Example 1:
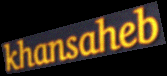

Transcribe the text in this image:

khansaheb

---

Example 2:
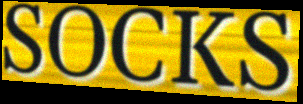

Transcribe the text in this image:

SOCKS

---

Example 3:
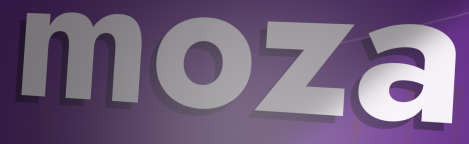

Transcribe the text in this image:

moza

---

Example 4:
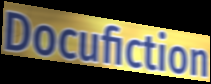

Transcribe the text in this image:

Docufiction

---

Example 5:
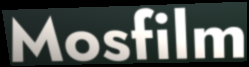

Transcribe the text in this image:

Mosfilm